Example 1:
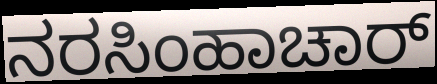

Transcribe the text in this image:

ನರಸಿಂಹಾಚಾರ್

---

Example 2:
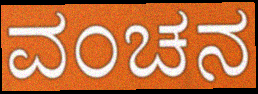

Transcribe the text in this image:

ವಂಚನ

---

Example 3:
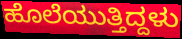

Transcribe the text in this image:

ಹೊಲೆಯುತ್ತಿದ್ದಳು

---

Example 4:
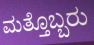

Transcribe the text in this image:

ಮತ್ತೊಬ್ಬರು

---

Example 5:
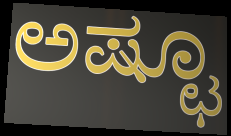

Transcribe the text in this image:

ಅಷ್ಟೂ